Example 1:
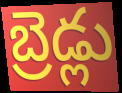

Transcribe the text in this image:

బ్రెడ్లు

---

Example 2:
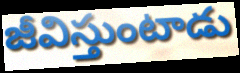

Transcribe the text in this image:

జీవిస్తుంటాడు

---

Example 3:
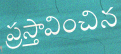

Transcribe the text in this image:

ప్రస్తావించిన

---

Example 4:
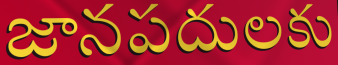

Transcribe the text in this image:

జానపదులకు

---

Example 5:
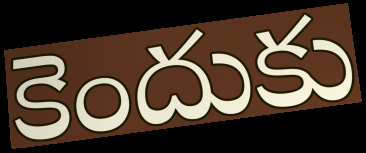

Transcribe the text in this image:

కెందుకు